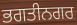
ਭਗਤੀਨਗਰ